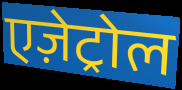
एज़ेट्रोल